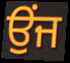
ਉੰਜ